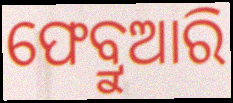
ଫେବ୍ରୁଆରି